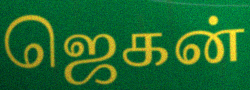
ஜெகன்